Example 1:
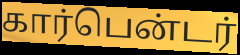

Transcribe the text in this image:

கார்பென்டர்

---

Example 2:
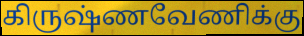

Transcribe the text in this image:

கிருஷ்ணவேணிக்கு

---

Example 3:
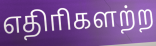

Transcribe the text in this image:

எதிரிகளற்ற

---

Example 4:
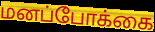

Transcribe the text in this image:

மனப்போக்கை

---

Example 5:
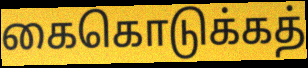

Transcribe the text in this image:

கைகொடுக்கத்